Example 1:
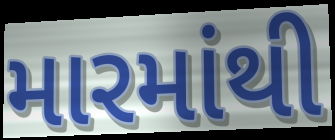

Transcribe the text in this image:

મારમાંથી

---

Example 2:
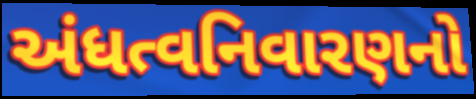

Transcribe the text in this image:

અંધત્વનિવારણનો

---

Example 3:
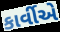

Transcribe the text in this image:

કાર્વીએ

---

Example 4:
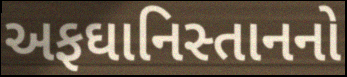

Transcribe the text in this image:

અફઘાનિસ્તાનનો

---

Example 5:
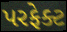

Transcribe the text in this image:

પરફેક્ટ